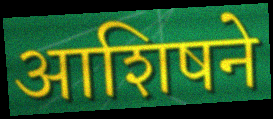
आशिषने